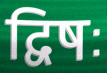
द्विषः